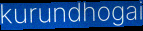
kurundhogai